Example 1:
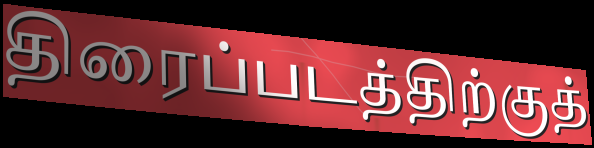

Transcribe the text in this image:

திரைப்படத்திற்குத்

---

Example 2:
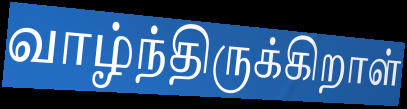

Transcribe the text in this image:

வாழ்ந்திருக்கிறாள்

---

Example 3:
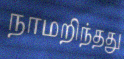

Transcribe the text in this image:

நாமறிந்தது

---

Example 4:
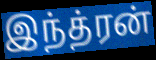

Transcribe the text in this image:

இந்த்ரன்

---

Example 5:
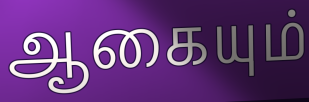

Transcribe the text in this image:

ஆகையும்